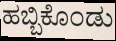
ಹಬ್ಬಿಕೊಂಡು